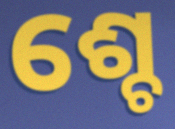
ଶ୍ଚେ